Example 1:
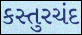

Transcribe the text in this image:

કસ્તુરચંદ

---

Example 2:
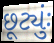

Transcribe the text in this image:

છૂટ્યુંઃ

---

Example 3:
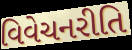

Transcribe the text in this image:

વિવેચનરીતિ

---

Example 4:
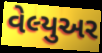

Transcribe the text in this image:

વેલ્યુઅર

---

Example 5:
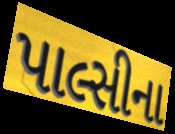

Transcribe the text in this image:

પાલ્સીના